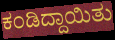
ಕಂಡಿದ್ದಾಯಿತು